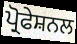
ਪ੍ਰੋਫੇਸ਼ਨਲ